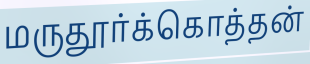
மருதூர்க்கொத்தன்